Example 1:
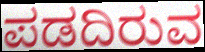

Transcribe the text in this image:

ಪಡದಿರುವ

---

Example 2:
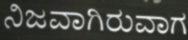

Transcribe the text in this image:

ನಿಜವಾಗಿರುವಾಗ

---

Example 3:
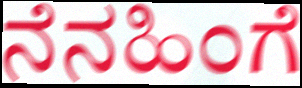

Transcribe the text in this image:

ನೆನಹಿಂಗೆ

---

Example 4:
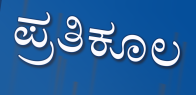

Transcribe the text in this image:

ಪ್ರತಿಕೂಲ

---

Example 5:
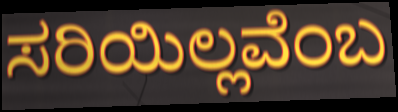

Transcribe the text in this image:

ಸರಿಯಿಲ್ಲವೆಂಬ